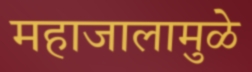
महाजालामुळे